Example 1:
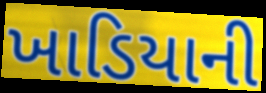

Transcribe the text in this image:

ખાડિયાની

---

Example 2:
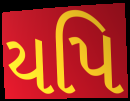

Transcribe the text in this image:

યપિ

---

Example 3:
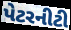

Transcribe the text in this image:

પેટરનીટી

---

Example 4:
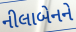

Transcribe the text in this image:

નીલાબેનને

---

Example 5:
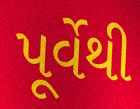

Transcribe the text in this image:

પૂર્વેથી